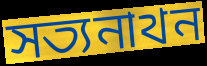
সত্যনাথন